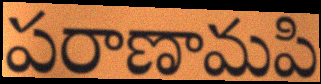
పరాణామపి